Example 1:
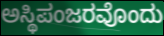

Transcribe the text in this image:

ಅಸ್ಥಿಪಂಜರವೊಂದು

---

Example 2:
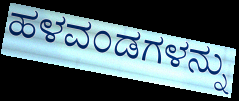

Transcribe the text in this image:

ಹಳವಂಡಗಳನ್ನು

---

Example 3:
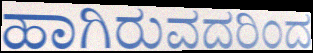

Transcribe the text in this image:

ಹಾಗಿರುವದರಿಂದ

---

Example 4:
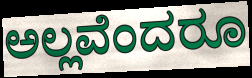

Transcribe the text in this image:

ಅಲ್ಲವೆಂದರೂ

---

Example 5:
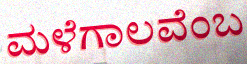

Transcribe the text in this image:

ಮಳೆಗಾಲವೆಂಬ